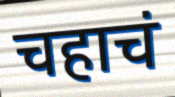
चहाचं